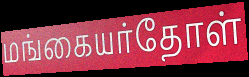
மங்கையர்தோள்